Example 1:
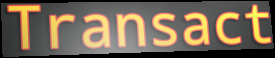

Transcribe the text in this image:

Transact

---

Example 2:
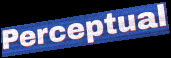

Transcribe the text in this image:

Perceptual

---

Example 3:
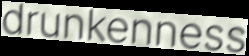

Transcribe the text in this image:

drunkenness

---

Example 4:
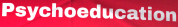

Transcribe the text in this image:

Psychoeducation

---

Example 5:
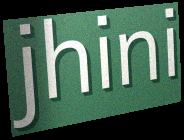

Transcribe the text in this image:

jhini